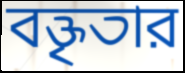
বক্তৃতার